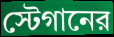
স্টেগানের